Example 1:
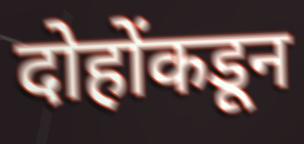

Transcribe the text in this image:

दोहोंकडून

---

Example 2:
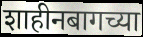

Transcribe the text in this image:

शाहीनबागच्या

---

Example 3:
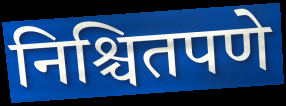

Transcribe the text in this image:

निश्चितपणे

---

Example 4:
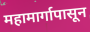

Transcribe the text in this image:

महामार्गापासून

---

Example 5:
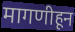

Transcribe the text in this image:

मागणीहून